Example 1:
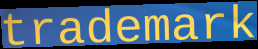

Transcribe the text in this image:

trademark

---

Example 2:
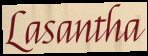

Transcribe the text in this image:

Lasantha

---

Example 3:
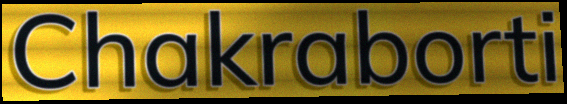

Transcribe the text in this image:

Chakraborti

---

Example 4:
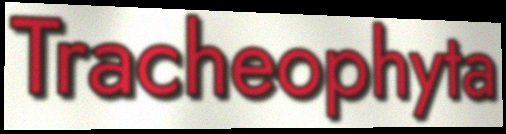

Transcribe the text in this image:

Tracheophyta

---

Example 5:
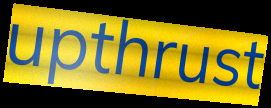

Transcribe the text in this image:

upthrust